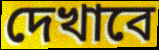
দেখাবে